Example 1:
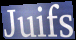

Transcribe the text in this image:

Juifs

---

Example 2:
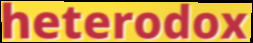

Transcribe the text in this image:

heterodox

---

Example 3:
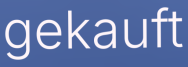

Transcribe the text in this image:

gekauft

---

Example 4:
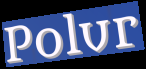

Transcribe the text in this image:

Polur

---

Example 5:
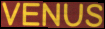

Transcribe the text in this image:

VENUS